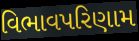
વિભાવપરિણામ